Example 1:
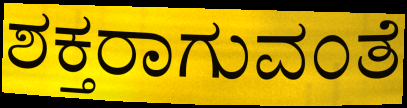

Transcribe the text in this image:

ಶಕ್ತರಾಗುವಂತೆ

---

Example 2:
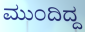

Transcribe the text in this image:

ಮುಂದಿದ್ದ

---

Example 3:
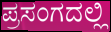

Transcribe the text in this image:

ಪ್ರಸಂಗದಲ್ಲಿ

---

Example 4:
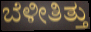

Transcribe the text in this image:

ಬೆಳೀತಿತ್ತು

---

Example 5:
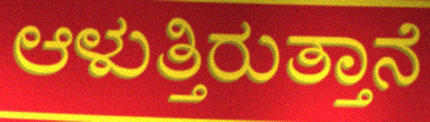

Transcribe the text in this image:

ಆಳುತ್ತಿರುತ್ತಾನೆ